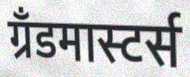
ग्रँडमास्टर्स